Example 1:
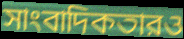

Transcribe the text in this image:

সাংবাদিকতারও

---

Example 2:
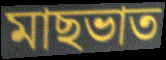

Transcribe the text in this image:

মাছভাত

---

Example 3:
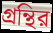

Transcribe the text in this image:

গ্রন্থির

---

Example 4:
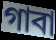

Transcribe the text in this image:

গাবা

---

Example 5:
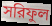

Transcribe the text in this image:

সরিফুল